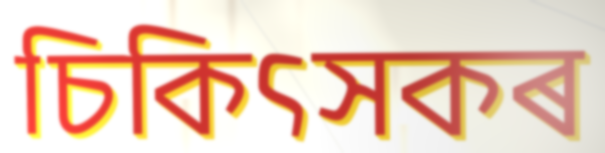
চিকিৎসকৰ